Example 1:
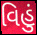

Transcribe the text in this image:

વિહું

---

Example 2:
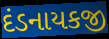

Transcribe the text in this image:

દંડનાયકજી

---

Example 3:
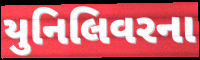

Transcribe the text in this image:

યુનિલિવરના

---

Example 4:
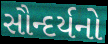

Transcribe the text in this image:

સૌન્દર્યનો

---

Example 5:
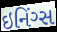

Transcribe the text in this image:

ઇનિંગ્સ